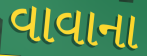
વાવાના